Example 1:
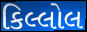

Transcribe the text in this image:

કિલ્લોલ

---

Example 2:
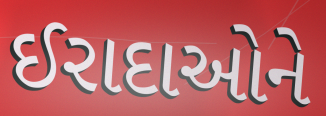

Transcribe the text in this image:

ઈરાદાઓને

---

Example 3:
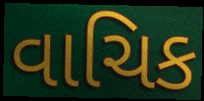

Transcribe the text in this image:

વાચિક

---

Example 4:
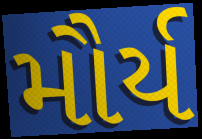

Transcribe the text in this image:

મૌર્ય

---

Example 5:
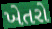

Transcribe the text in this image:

ખેતરો